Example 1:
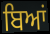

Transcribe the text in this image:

ਬਿਆਂ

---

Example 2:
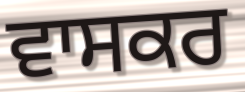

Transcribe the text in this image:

ਵਾਸਕਰ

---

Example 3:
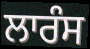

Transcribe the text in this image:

ਲਾਰੰਸ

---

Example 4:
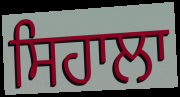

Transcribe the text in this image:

ਸਿਹਾਲਾ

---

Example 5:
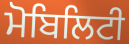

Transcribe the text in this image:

ਮੋਬਿਲਿਟੀ